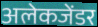
अलेकजेंडर